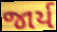
જાર્ય